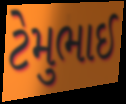
ટેમુભાઈ